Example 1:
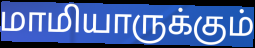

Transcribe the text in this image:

மாமியாருக்கும்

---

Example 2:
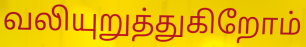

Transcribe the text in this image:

வலியுறுத்துகிறோம்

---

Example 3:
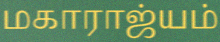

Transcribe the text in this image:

மகாராஜ்யம்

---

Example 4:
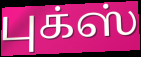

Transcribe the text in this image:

புக்ஸ்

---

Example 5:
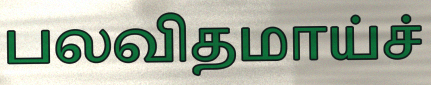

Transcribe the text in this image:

பலவிதமாய்ச்